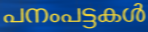
പനംപട്ടകൾ